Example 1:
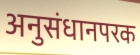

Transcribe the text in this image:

अनुसंधानपरक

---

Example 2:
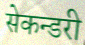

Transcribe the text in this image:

सेकन्डरी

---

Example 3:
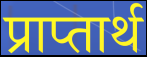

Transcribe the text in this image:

प्राप्तार्थ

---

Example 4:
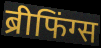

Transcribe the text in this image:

ब्रीफिंग्स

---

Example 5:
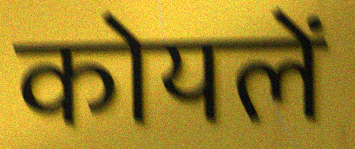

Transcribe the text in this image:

कोयलें